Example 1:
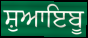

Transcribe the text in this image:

ਸ਼ੁਆਇਬੂ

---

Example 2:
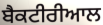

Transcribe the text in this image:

ਬੈਕਟੀਰੀਆਲ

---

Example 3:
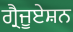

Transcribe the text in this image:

ਗ੍ਰੈਜੂਏਸ਼ਨ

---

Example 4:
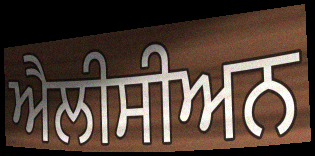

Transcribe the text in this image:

ਐਲੀਸੀਅਨ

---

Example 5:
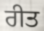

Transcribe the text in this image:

ਰੀਤ